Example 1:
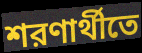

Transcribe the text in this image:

শরণার্থীতে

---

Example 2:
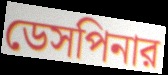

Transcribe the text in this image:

ডেসপিনার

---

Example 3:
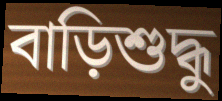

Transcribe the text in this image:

বাড়িশুদ্ধু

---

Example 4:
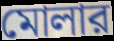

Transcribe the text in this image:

মোলার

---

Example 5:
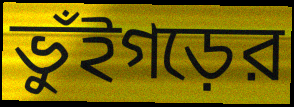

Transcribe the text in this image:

ভুঁইগড়ের